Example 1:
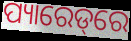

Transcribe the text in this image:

ପ୍ୟାରେଡ୍‌ରେ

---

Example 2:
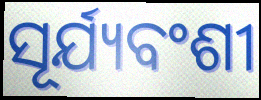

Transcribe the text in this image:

ସୂର୍ଯ୍ୟବଂଶୀ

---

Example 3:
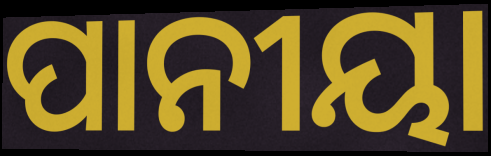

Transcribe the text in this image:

ପାନୀୟା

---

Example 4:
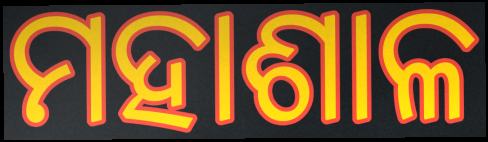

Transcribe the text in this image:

ମହାଶାଳ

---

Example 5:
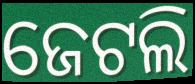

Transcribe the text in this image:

ଜେଟଲି